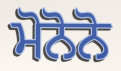
ਮੋਨੋਨੋ